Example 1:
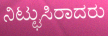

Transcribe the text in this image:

ನಿಟ್ಟುಸಿರಾದರು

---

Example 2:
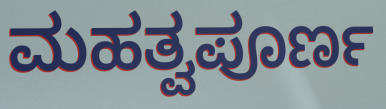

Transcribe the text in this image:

ಮಹತ್ವಪೂರ್ಣ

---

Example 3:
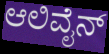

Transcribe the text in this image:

ಆಲಿವೈನ್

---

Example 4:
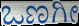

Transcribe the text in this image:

ಒಣಗೀ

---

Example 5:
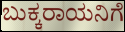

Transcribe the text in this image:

ಬುಕ್ಕರಾಯನಿಗೆ